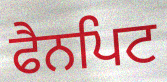
ਫੈਨਪਿਟ